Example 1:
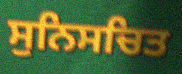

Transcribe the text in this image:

ਸੁਨਿਸਚਿਤ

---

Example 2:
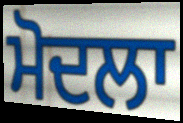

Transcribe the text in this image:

ਮੋਦਲਾ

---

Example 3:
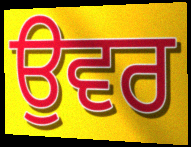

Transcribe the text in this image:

ਉਵਰ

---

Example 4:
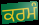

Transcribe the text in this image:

ਕਰਮੰ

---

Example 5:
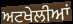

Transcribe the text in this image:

ਅਟਖੇਲੀਆਂ